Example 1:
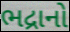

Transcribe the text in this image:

ભદ્રાનો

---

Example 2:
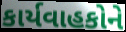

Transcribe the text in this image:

કાર્યવાહકોને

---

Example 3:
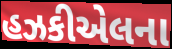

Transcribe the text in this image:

હઝકીએલના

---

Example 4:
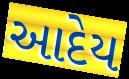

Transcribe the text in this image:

આદેય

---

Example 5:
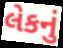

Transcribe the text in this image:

લેકનું